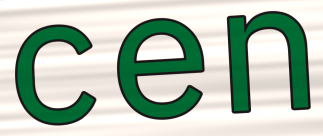
cen